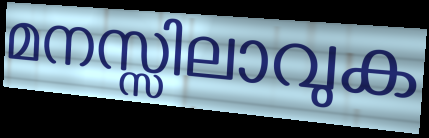
മനസ്സിലാവുക